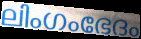
ലിംഗംഭേദം